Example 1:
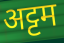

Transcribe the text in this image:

अट्टम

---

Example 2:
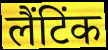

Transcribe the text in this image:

लैंटिंक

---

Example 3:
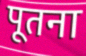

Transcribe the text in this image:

पूतना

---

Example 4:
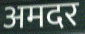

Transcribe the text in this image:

अमदर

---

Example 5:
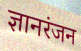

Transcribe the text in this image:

ज्ञानरंजन